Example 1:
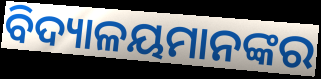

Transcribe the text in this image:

ବିଦ୍ୟାଳୟମାନଙ୍କର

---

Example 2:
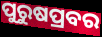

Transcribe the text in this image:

ପୁରୁଷପ୍ରବର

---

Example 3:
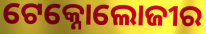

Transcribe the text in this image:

ଟେକ୍ନୋଲୋଜୀର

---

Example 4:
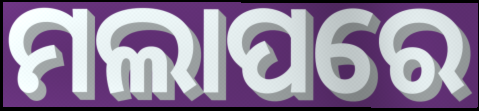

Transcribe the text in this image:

ମଲାପରେ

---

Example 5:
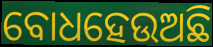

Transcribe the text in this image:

ବୋଧହେଉଅଛି